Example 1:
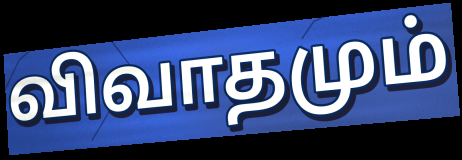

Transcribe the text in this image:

விவாதமும்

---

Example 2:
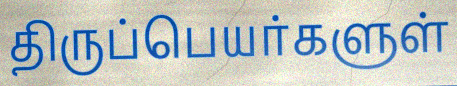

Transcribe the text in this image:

திருப்பெயர்களுள்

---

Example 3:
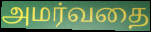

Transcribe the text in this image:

அமர்வதை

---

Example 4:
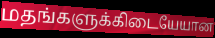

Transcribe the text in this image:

மதங்களுக்கிடையேயான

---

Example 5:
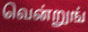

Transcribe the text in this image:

வென்றுங்